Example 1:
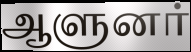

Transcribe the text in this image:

ஆளுனர்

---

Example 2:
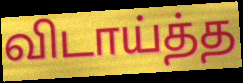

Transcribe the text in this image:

விடாய்த்த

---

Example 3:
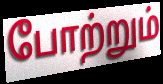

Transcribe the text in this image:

போற்றும்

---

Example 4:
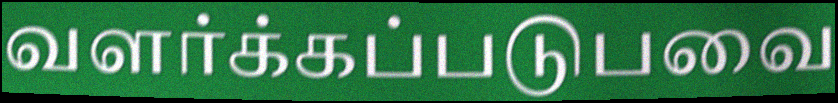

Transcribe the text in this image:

வளர்க்கப்படுபவை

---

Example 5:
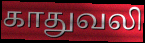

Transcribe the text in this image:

காதுவலி